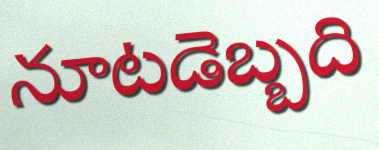
నూటడెబ్బది